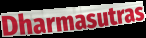
Dharmasutras